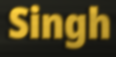
Singh